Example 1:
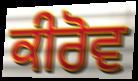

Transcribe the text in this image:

ਕੀਰੋਵ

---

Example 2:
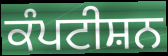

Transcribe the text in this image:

ਕੰਪਟੀਸ਼ਨ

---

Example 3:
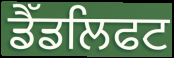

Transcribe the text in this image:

ਡੈੱਡਲਿਫਟ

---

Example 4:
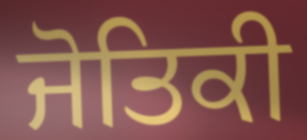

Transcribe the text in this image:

ਜੋਤਿਕੀ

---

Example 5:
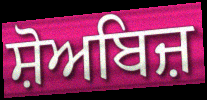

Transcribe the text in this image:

ਸ਼ੋਅਬਿਜ਼